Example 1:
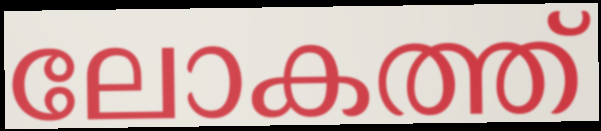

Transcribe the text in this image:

ലോകത്ത്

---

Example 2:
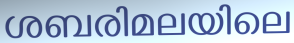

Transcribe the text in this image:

ശബരിമലയിലെ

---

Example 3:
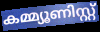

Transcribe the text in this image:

കമ്മ്യൂണിസ്റ്റ്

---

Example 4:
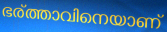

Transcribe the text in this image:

ഭര്ത്താവിനെയാണ്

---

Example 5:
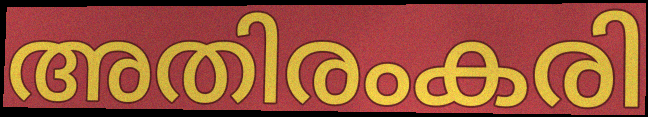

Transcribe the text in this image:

അതിരംകരി